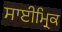
ਸਾਈਮ੍ਰਿਕ